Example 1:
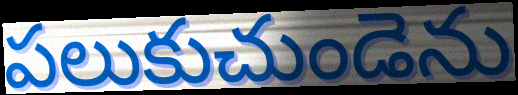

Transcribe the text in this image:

పలుకుచుండెను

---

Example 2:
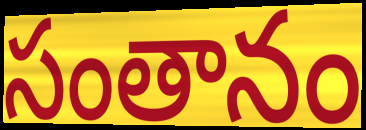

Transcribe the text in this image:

సంతానం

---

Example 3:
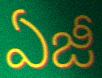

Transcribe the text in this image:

ఏజీ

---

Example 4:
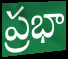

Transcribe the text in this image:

ప్రభా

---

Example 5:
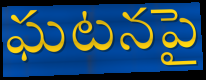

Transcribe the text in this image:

ఘటనపై